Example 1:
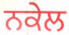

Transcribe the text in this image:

ਨਕੇਲ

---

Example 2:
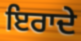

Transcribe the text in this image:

ਇਰਾਦੇ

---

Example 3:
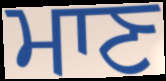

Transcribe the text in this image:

ਮਾਣ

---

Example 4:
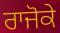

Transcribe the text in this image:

ਰਾਜੋਕੇ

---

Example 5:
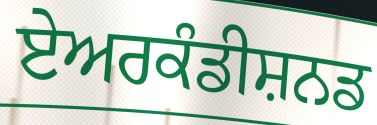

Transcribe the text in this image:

ਏਅਰਕੰਡੀਸ਼ਨਡ